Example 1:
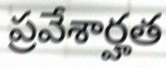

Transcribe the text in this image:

ప్రవేశార్హత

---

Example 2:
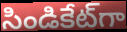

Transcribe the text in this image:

సిండికేట్‌గా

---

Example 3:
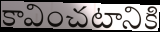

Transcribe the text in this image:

కావించటానికి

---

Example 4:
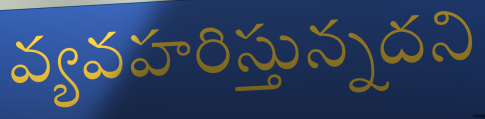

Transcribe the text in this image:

వ్యవహరిస్తున్నదని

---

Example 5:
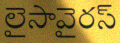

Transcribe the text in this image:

లైసావైరస్